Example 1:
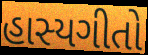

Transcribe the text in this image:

હાસ્યગીતો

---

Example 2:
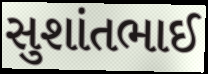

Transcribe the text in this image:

સુશાંતભાઈ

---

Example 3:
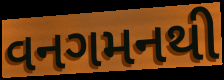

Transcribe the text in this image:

વનગમનથી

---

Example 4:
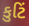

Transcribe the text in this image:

કુટિં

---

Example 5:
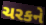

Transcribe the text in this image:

ચરકને